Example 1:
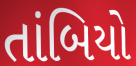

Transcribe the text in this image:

તાંબિયો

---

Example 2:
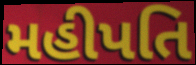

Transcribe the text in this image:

મહીપતિ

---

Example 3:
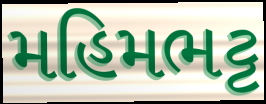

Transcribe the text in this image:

મહિમભટ્ટ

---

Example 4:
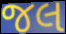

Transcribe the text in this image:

જલ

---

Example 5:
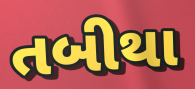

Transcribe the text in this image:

તબીથા